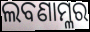
ଲବଣାମ୍ଳର